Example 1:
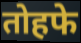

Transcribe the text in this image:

तोहफे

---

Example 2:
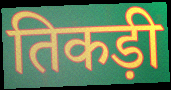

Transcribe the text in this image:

तिकड़ी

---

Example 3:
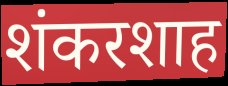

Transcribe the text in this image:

शंकरशाह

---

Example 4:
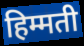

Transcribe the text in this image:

हिम्मती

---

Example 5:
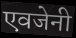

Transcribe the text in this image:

एवजेनी